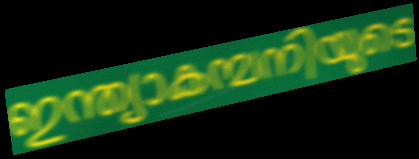
ഇന്ത്യാകമ്പനിയുടെ